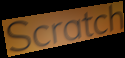
Scratch